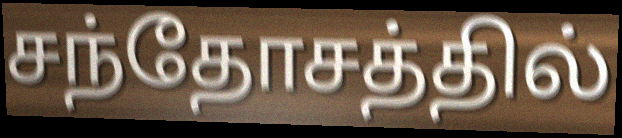
சந்தோசத்தில்